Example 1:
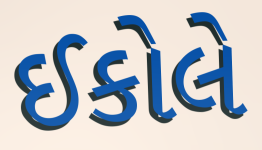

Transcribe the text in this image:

ઈકોલે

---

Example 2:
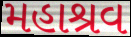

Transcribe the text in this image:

મહાશ્રવ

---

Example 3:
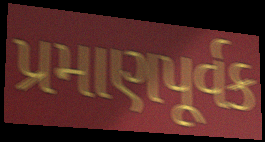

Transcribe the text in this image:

પ્રમાણપૂર્વક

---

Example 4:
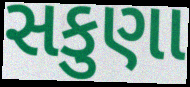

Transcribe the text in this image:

સકુણા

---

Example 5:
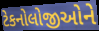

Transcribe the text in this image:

ટેકનોલોજીઓને